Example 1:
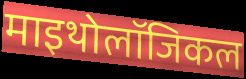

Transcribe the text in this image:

माइथोलॉजिकल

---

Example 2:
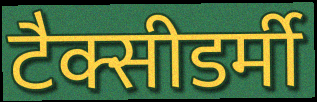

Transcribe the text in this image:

टैक्सीडर्मी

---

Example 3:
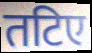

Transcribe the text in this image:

तटिए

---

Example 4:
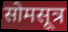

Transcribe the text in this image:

सोमसूत्र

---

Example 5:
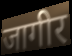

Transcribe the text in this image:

जागीर